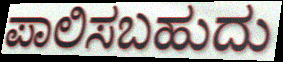
ಪಾಲಿಸಬಹುದು